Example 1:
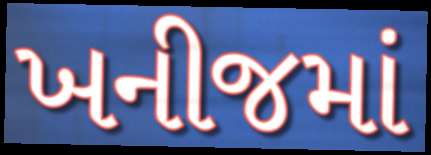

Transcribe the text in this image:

ખનીજમાં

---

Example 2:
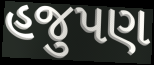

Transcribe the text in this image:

હજુપણ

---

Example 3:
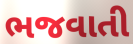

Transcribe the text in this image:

ભજવાતી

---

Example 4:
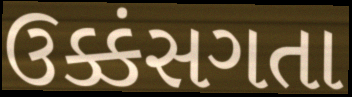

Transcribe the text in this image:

ઉક્કંસગતા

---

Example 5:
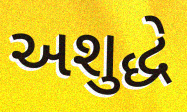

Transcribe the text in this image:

અશુદ્ધે